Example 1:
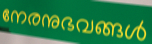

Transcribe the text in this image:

നേരനുഭവങ്ങൾ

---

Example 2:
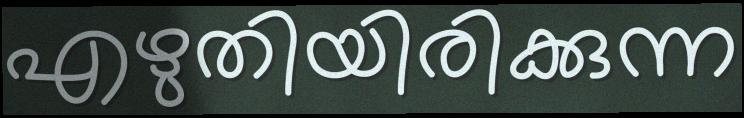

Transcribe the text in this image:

എഴുതിയിരിക്കുന്ന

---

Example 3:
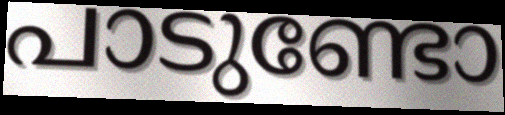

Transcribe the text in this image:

പാടുണ്ടോ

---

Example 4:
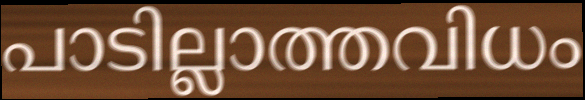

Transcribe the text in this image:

പാടില്ലാത്തവിധം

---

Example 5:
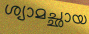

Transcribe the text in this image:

ശ്യാമച്ഛായ